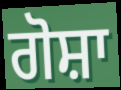
ਗੋਸ਼ਾ